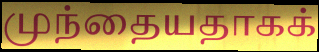
முந்தையதாகக்